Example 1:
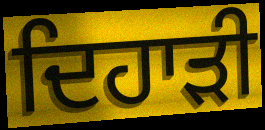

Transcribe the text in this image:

ਦਿਹਾੜੀ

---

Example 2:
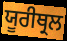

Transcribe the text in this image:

ਯੂਰੀਥ੍ਰਲ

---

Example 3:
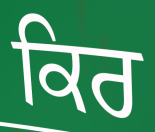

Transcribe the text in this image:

ਕਿਰ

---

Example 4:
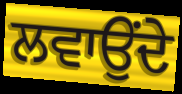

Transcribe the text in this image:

ਲਵਾਉਂਦੇ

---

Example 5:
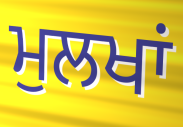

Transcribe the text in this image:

ਮੁਲਖਾਂ